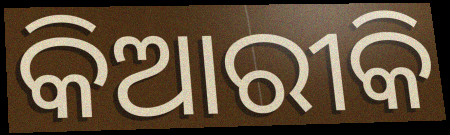
କିଆରୀକି